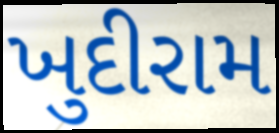
ખુદીરામ